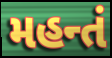
મહન્તં